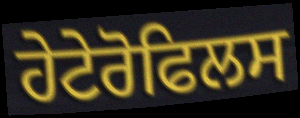
ਹੇਟੇਰੋਫਿਲਸ